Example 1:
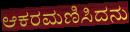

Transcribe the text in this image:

ಆಕರಮಣಿಸಿದನು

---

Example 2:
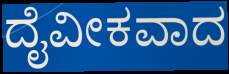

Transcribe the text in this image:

ದೈವೀಕವಾದ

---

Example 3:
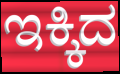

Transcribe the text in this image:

ಇಕ್ಕಿದ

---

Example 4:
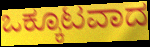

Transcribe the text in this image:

ಒಕ್ಕೂಟವಾದ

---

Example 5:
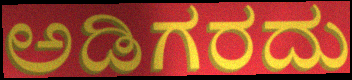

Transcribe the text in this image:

ಅಡಿಗರದು